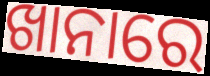
ଖାନାରେ